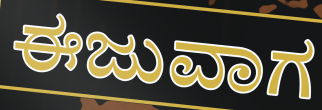
ಈಜುವಾಗ